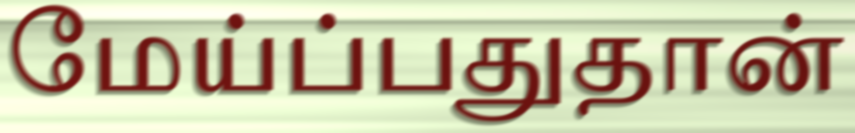
மேய்ப்பதுதான்